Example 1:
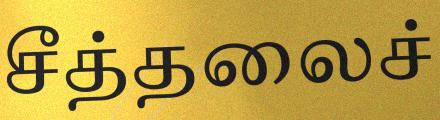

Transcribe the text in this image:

சீத்தலைச்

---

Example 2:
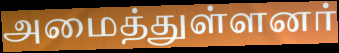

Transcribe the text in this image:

அமைத்துள்ளனர்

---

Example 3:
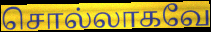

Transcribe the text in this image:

சொல்லாகவே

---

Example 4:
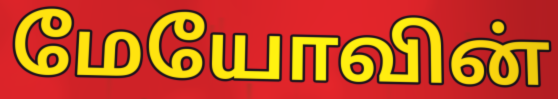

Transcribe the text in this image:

மேயோவின்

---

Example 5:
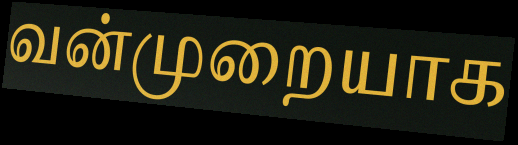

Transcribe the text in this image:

வன்முறையாக